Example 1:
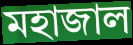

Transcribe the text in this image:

মহাজাল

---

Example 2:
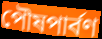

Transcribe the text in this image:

পৌষপার্বণ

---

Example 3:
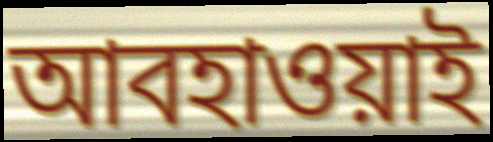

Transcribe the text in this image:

আবহাওয়াই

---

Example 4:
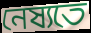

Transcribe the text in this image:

নেষ্যতে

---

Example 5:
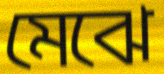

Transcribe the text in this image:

মেঝে